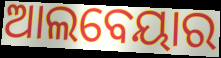
ଆଲବେୟାର